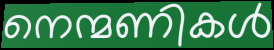
നെന്മണികൾ